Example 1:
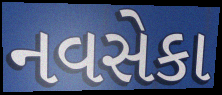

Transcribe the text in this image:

નવસેકા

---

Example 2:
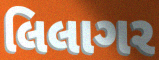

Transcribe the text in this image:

લિલાગર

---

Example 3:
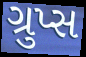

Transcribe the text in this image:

ગ્રુપ્સ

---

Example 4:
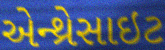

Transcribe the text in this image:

એન્થ્રેસાઇટ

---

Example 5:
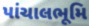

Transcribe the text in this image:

પાંચાલભૂમિ